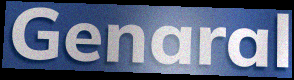
Genaral